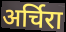
अर्चिरा